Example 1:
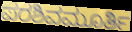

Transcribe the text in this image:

ಪರಶಿವಮೂರ್ತಿ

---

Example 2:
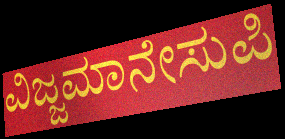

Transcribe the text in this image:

ವಿಜ್ಜಮಾನೇಸುಪಿ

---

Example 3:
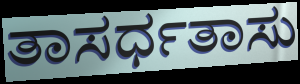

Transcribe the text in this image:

ತಾಸರ್ಧತಾಸು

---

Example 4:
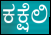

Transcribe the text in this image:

ಕಕ್ಷೆಲಿ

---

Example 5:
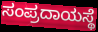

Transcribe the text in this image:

ಸಂಪ್ರದಾಯಸ್ಥೆ